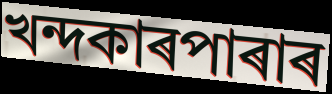
খন্দকাৰপাৰাৰ